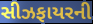
સીઝફાયરની